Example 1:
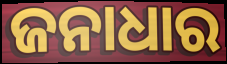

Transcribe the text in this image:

ଜନାଧାର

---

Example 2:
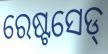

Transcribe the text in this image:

ରେଷ୍ଟସେଡ୍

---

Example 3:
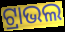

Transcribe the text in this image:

ଟ୍ରାଭଲ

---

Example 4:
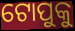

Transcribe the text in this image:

ଟୋପୁକୁ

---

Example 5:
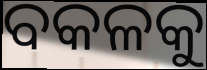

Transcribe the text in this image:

ବକଳକୁ